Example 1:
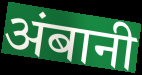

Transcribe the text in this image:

अंबानी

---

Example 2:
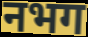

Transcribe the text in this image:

नभग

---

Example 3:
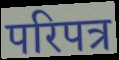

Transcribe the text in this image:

परिपत्र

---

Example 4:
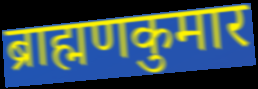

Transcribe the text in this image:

ब्राह्मणकुमार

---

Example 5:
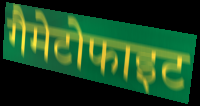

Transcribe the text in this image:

गैमेटोफाइट